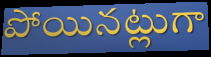
పోయినట్లుగా